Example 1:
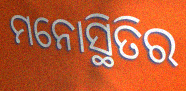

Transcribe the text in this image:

ମନୋସ୍ଥିତିର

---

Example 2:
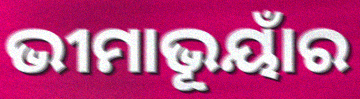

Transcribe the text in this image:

ଭୀମାଭୂୟାଁର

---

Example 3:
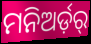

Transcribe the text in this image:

ମନିଅର୍ଡ଼ର୍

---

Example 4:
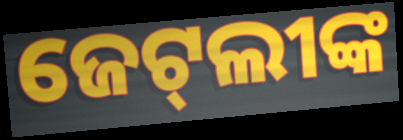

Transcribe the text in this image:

ଜେଟ୍‌ଲୀଙ୍କ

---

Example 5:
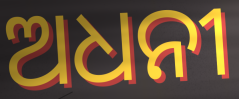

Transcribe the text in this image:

ଅଧନୀ